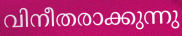
വിനീതരാക്കുന്നു